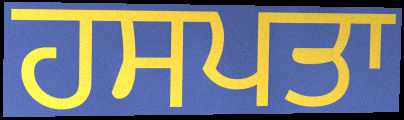
ਹਸਪਤਾ